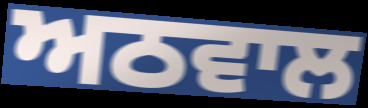
ਅਠਵਾਲ